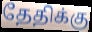
தேதிக்கு